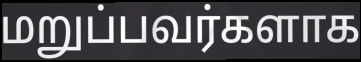
மறுப்பவர்களாக